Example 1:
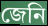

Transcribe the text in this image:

জেনি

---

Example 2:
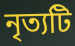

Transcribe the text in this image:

নৃত্যটি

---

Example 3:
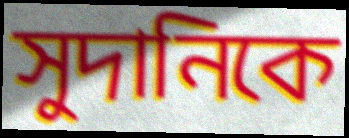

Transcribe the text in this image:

সুদানিকে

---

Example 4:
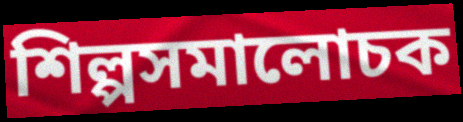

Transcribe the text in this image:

শিল্পসমালোচক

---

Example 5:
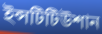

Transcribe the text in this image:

ইন্সটিটিউশান